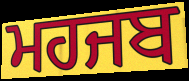
ਮਹਜਬ